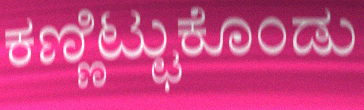
ಕಣ್ಣಿಟ್ಟುಕೊಂಡು